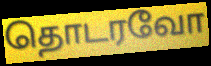
தொடரவோ